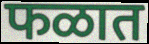
फळात